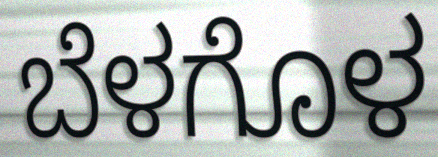
ಬೆಳಗೊಳ